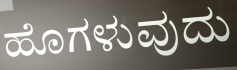
ಹೊಗಳುವುದು